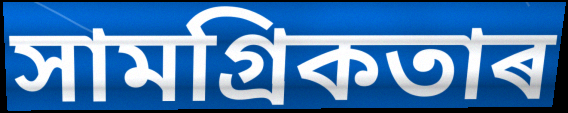
সামগ্ৰিকতাৰ